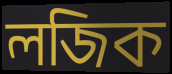
লজিক